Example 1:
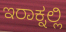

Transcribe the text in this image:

ಇರಾಕ್ನಲ್ಲಿ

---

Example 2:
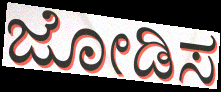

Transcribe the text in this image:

ಜೋಡಿಸ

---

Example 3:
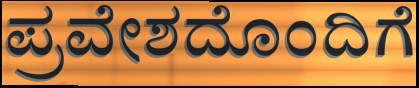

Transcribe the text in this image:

ಪ್ರವೇಶದೊಂದಿಗೆ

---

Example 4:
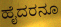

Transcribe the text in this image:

ಹೈದರನೂ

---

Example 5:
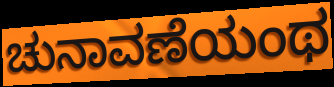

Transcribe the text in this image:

ಚುನಾವಣೆಯಂಥ